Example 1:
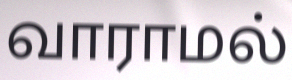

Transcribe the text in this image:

வாராமல்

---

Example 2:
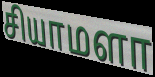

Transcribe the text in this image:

சியாமளா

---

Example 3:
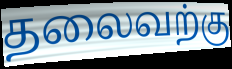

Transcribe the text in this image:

தலைவற்கு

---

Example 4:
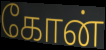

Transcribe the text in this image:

கோன்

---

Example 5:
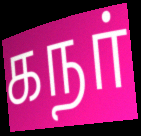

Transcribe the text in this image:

கநர்